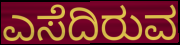
ಎಸೆದಿರುವ